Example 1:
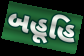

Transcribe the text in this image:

બહૂહિ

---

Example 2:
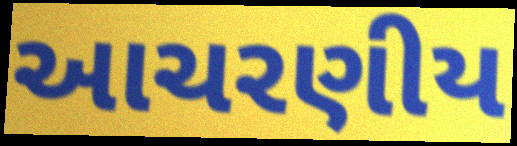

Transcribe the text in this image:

આચરણીય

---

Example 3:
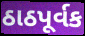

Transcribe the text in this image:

ઠાઠપૂર્વક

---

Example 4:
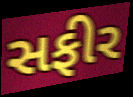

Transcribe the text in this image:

સફીર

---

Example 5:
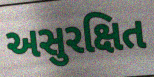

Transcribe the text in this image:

અસુરક્ષિત